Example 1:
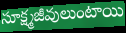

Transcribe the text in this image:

సూక్ష్మజీవులుంటాయి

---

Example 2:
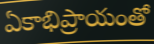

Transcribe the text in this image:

ఏకాభిప్రాయంతో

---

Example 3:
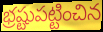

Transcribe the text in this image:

భ్రష్టుపట్టించిన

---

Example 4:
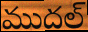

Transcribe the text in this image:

ముదల్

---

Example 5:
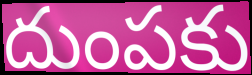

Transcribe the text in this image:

దుంపకు